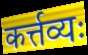
कर्त्तव्यः